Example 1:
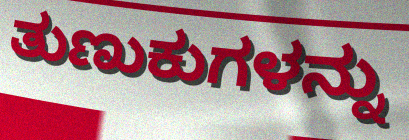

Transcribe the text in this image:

ತುಣುಕುಗಳನ್ನು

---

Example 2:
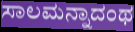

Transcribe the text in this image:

ಸಾಲಮನ್ನಾದಂಥ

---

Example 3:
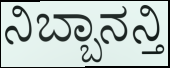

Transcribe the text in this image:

ನಿಬ್ಬಾನನ್ತಿ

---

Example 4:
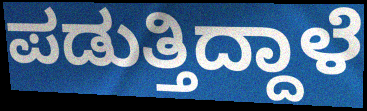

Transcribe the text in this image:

ಪಡುತ್ತಿದ್ದಾಳೆ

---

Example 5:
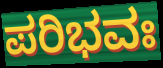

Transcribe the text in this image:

ಪರಿಭವಃ